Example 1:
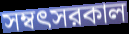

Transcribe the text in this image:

সম্বৎসরকাল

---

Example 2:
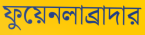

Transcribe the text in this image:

ফুয়েনলাব্রাদার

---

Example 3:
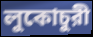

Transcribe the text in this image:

লুকোচুরী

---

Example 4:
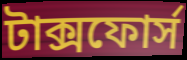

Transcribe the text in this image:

টাক্সফোর্স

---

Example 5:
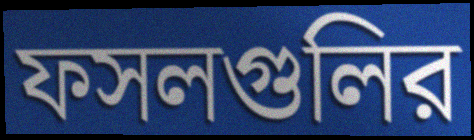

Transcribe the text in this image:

ফসলগুলির